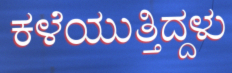
ಕಳೆಯುತ್ತಿದ್ದಳು